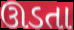
ઊડતા